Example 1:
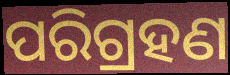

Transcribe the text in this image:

ପରିଗ୍ରହଣ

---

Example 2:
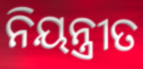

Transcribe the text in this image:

ନିୟନ୍ତ୍ରୀତ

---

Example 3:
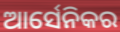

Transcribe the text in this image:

ଆର୍ସେନିକର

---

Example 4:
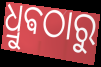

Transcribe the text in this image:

ଧ୍ରୁଵଠାରୁ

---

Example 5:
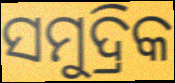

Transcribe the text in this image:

ସମୁଦ୍ରିକ